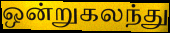
ஒன்றுகலந்து